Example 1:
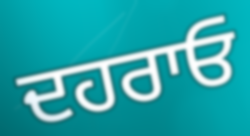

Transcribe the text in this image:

ਦਹਰਾਓ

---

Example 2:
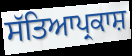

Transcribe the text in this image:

ਸੱਤਿਆਪ੍ਰਕਾਸ਼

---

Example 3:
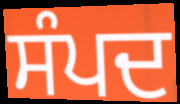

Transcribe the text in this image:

ਸੰਪਦ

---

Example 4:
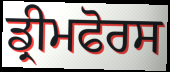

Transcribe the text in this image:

ਡ੍ਰੀਮਫੋਰਸ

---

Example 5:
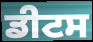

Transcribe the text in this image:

ਡੀਟਸ